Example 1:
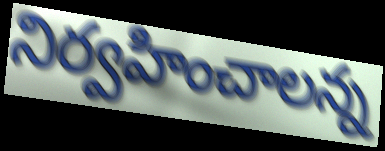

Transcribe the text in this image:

నిర్వహించాలన్న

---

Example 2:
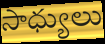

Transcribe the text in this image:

సాధ్యులు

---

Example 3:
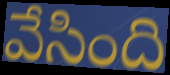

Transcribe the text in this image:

వేసింది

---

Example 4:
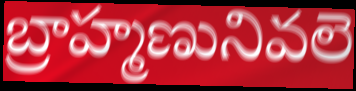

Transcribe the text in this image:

బ్రాహ్మణునివలె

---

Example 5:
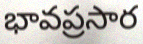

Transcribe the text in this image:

భావప్రసార